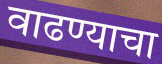
वाढण्याचा